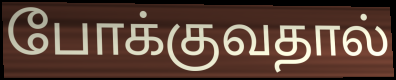
போக்குவதால்